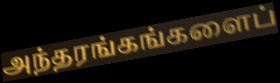
அந்தரங்கங்களைப்